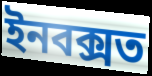
ইনবক্সত